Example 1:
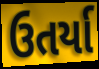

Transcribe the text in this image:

ઉતર્યા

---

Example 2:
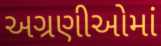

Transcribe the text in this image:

અગ્રણીઓમાં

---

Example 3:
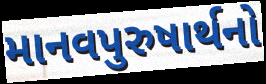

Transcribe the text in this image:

માનવપુરુષાર્થનો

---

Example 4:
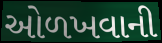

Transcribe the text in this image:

ઓળખવાની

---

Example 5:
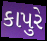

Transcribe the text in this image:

કાપુરે